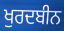
ਖੁਰਦਬੀਨ